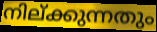
നില്ക്കുന്നതും